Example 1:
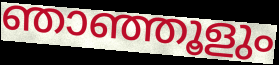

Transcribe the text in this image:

ഞാഞ്ഞൂളും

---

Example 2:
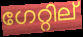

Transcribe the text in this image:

ഗേറ്റില്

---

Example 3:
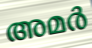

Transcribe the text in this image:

അമർ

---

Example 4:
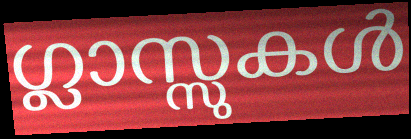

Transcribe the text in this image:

ഗ്ലാസ്സുകൾ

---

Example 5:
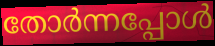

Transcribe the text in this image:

തോർന്നപ്പോൾ